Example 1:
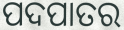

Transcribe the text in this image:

ପଦପାତର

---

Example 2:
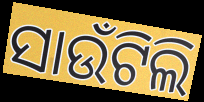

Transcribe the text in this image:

ସାଉଁଟିଲି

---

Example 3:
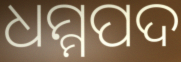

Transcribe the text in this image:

ଧମ୍ମପଦ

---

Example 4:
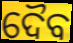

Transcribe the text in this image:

ଦୈବ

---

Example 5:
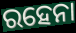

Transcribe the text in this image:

ରହେନା